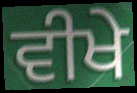
ਵੀਖੇ